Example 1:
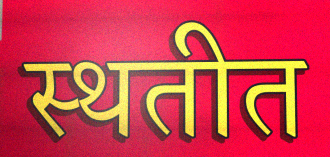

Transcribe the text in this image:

स्थतीत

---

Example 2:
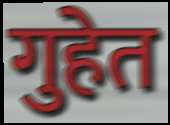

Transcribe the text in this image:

गुहेत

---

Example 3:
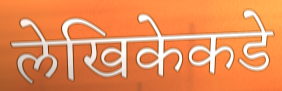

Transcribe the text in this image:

लेखिकेकडे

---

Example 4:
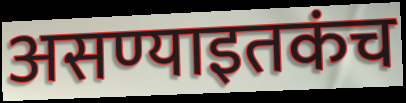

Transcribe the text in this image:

असण्याइतकंच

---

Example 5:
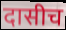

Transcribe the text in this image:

दासीच